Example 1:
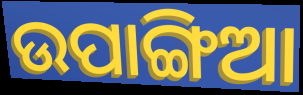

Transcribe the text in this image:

ଉପାଙ୍ଗିଆ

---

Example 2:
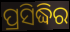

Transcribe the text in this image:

ପ୍ରସିଦ୍ଧିର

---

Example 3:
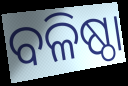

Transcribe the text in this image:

ବଳିଷ୍ଠା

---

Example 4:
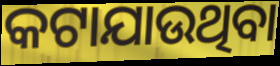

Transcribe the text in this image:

କଟାଯାଉଥିବା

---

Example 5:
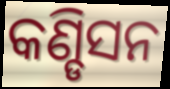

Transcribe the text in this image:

କଣ୍ଡିସନ